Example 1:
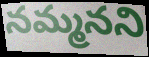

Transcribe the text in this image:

నమ్మనని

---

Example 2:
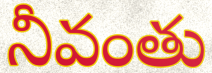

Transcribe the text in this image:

నీవంతు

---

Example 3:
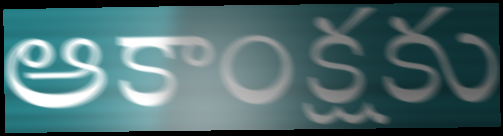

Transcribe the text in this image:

ఆకాంక్షకు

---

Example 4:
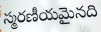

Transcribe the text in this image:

స్మరణీయమైనది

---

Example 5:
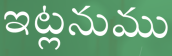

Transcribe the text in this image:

ఇట్లనుము